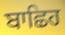
ਬਾਛਿਹ